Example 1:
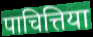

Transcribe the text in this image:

पाचित्तिया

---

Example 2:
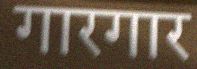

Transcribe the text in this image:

गारगार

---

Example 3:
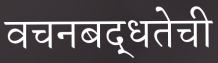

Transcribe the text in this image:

वचनबद्धतेची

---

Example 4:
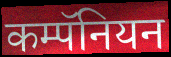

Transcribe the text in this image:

कम्पॅनियन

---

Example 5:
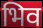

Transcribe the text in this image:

भिव